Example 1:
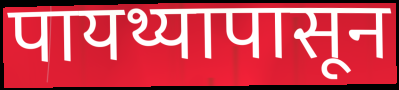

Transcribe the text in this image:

पायथ्यापासून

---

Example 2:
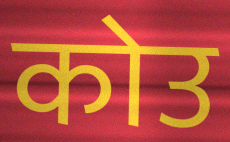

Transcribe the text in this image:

कोउ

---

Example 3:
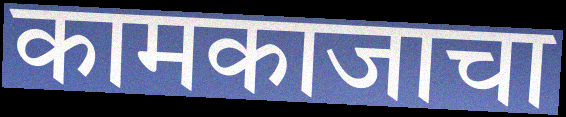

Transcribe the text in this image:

कामकाजाचा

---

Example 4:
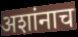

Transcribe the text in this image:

अशांनाच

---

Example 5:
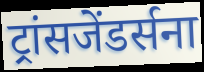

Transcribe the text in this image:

ट्रांसजेंडर्सना